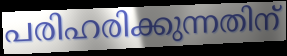
പരിഹരിക്കുന്നതിന്